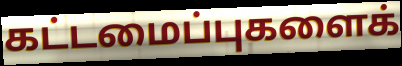
கட்டமைப்புகளைக்